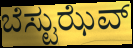
ಬೆಸ್ಟುಝೆವ್